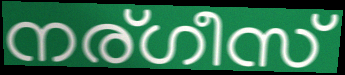
നര്ഗീസ്